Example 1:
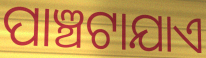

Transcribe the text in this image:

ପାଞ୍ଚଟାଯାଏ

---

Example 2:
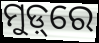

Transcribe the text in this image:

ମୁଡ଼୍‌ରେ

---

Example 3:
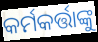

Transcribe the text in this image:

କର୍ମକର୍ତ୍ତାଙ୍କୁ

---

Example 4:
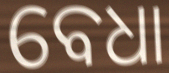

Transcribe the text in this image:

ବେଧା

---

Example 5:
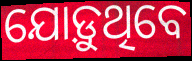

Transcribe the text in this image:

ଯୋଡ଼ୁଥିବେ